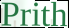
Prith